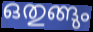
ഒതുങ്ങും